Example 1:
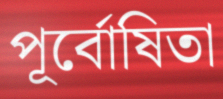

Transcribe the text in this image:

পূর্বোষিতা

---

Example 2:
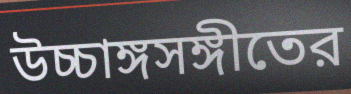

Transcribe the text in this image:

উচ্চাঙ্গসঙ্গীতের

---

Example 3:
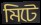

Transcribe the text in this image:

মিটে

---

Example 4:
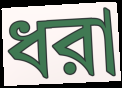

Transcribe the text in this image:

ধরা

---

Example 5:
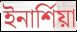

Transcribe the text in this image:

ইনার্শিয়া